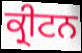
ਕ੍ਰੀਟਨ